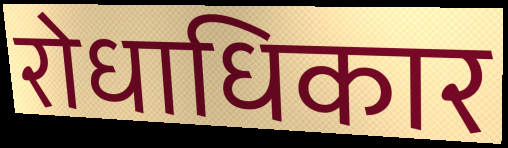
रोधाधिकार